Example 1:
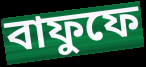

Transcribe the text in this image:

বাফুফে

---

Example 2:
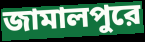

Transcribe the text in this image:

জামালপুরে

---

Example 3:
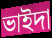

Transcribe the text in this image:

ভাইদা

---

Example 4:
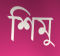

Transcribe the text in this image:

শিমু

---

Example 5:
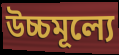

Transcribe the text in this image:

উচ্চমূল্যে